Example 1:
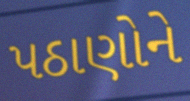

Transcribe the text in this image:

પઠાણોને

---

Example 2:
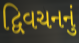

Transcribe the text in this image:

દ્વિવચનનું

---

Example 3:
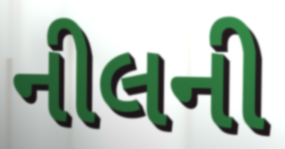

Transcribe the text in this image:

નીલની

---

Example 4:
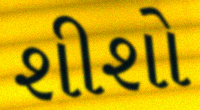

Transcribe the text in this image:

શીશો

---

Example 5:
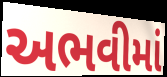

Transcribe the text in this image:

અભવીમાં